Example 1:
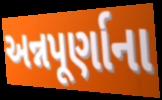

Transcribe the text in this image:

અન્નપૂર્ણાના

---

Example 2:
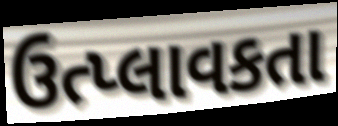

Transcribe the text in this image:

ઉત્પ્લાવકતા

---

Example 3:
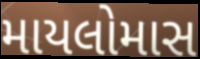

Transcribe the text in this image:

માયલોમાસ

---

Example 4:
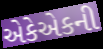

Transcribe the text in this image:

એકેએકની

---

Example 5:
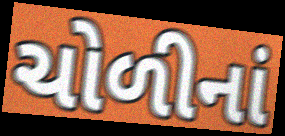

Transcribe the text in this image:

ચોળીનાં